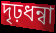
দৃঢ়ধন্বা